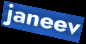
janeev